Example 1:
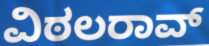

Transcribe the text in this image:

ವಿಠಲರಾವ್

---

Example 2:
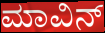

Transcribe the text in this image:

ಮಾವಿನ್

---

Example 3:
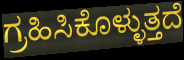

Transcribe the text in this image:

ಗ್ರಹಿಸಿಕೊಳ್ಳುತ್ತದೆ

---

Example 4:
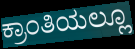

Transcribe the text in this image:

ಕ್ರಾಂತಿಯಲ್ಲೂ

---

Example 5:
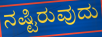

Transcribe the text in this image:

ನಷ್ಟಿರುವುದು